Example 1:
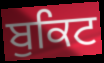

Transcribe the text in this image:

ਬੁਕਿਟ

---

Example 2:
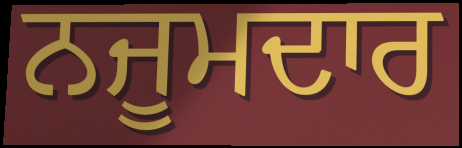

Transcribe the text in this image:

ਨਜੂਮਦਾਰ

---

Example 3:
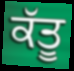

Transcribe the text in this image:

ਕੱਤੂ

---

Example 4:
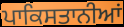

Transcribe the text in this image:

ਪਾਕਿਸਤਾਨੀਆਂ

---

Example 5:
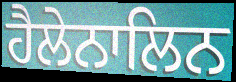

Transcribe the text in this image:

ਹੈਲੇਨਾਲਿਨ